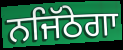
ਨਜਿੱਠੇਗਾ